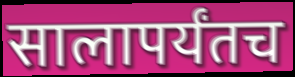
सालापर्यंतच